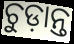
ଚୁଡ଼ାନ୍ତ